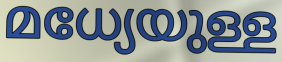
മധ്യേയുള്ള